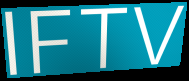
IFTV